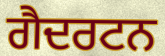
ਗੈਦਰਟਨ